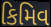
કિમિવ